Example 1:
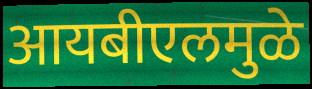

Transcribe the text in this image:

आयबीएलमुळे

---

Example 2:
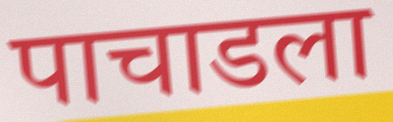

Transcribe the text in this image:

पाचाडला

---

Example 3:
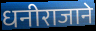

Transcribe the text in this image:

धनीराजाने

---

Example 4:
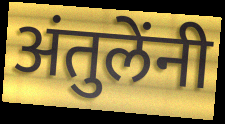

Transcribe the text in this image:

अंतुलेंनी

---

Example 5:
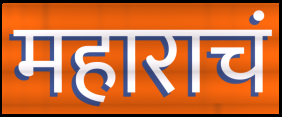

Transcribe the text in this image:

महाराचं